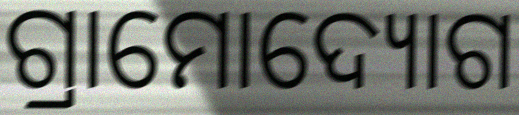
ଗ୍ରାମୋଦ୍ୟୋଗ